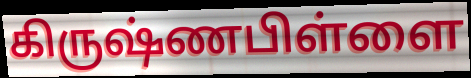
கிருஷ்ணபிள்ளை